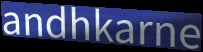
andhkarne